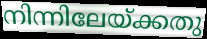
നിന്നിലേയ്ക്കതു